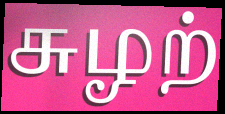
சுழற்